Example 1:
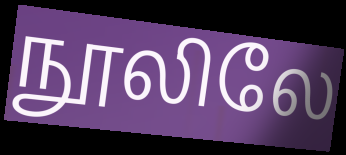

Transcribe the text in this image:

நூலிலே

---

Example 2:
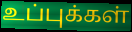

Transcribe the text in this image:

உப்புக்கள்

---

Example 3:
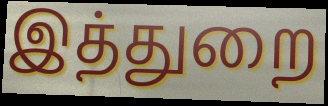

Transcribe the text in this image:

இத்துறை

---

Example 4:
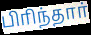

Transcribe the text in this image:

பிரிந்தார்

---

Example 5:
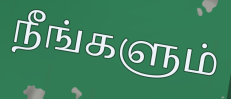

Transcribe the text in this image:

நீங்களும்